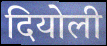
दियोली